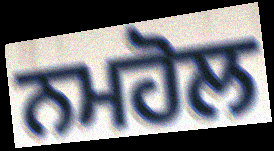
ਨਮਹੋਲ